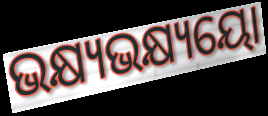
ଭକ୍ଷ୍ୟଭକ୍ଷ୍ୟୟୋ